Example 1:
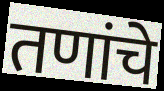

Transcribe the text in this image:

तणांचे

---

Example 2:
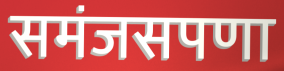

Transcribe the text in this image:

समंजसपणा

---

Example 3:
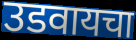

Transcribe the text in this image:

उडवायचा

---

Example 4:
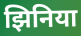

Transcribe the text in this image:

झिनिया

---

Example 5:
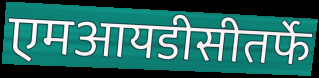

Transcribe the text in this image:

एमआयडीसीतर्फे